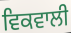
ਵਿਕਵਾਲੀ